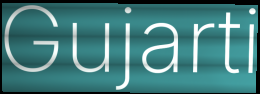
Gujarti